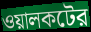
ওয়ালকটের